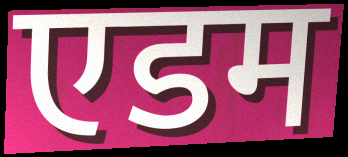
एडम